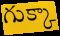
గుక్కా